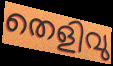
തെളിവു